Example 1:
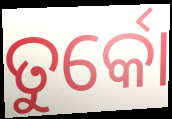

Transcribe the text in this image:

ତୁର୍କୋ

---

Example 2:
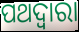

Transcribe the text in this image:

ପଥଦ୍ଵାରା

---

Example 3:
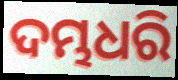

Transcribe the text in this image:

ଦମ୍ଭଧରି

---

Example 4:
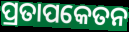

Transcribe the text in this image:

ପ୍ରତାପକେତନ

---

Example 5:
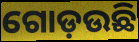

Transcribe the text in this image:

ଗୋଡ଼ଉଛି